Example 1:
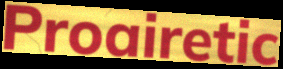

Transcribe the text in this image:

Proairetic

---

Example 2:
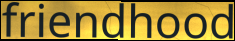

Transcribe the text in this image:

friendhood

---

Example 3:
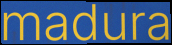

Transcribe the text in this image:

madura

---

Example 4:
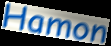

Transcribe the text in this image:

Hamon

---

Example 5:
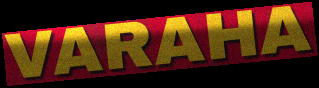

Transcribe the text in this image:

VARAHA